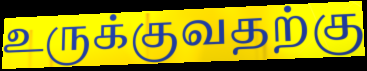
உருக்குவதற்கு